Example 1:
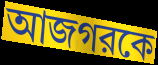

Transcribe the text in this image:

আজগরকে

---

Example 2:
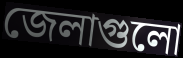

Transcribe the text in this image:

জেলাগুলো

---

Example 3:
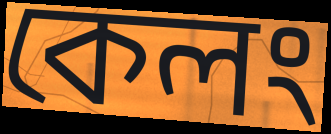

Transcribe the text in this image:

কেলং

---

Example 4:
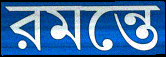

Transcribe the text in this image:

রমন্তে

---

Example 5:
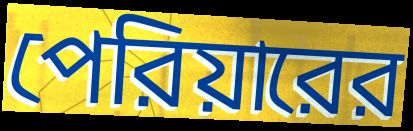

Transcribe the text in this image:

পেরিয়ারের